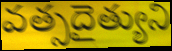
వత్సదైత్యుని